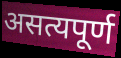
असत्यपूर्ण